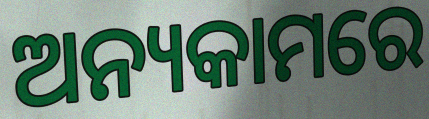
ଅନ୍ୟକାମରେ